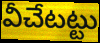
వీచేటట్టు